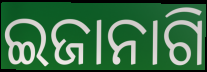
ଇଜାନାଗି